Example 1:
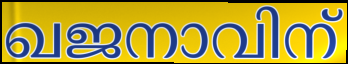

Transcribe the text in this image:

ഖജനാവിന്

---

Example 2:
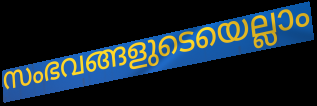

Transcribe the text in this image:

സംഭവങ്ങളുടെയെല്ലാം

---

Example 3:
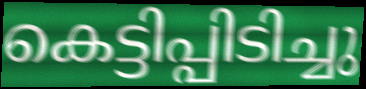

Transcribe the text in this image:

കെട്ടിപ്പിടിച്ചു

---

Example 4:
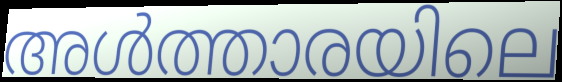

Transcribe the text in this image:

അൾത്താരയിലെ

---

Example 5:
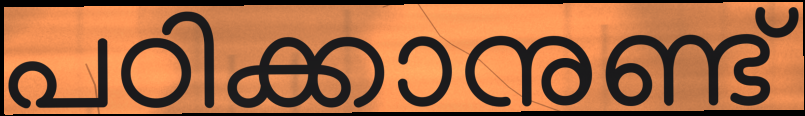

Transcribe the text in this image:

പഠിക്കാനുണ്ട്